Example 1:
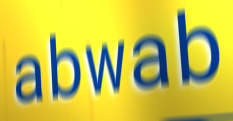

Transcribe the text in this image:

abwab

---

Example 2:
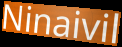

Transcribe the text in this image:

Ninaivil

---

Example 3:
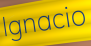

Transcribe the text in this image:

Ignacio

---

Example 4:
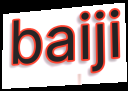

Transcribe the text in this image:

baiji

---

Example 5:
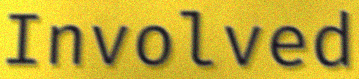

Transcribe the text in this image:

Involved